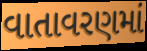
વાતાવરણમાં